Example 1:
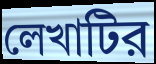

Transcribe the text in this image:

লেখাটির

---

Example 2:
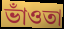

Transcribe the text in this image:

ভাঁওতা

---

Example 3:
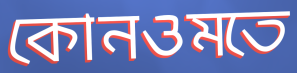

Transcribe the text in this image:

কোনওমতে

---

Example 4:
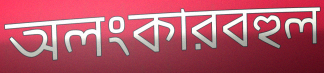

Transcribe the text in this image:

অলংকারবহুল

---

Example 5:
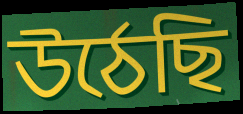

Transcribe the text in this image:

উঠেছি